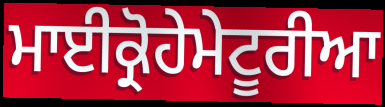
ਮਾਈਕ੍ਰੋਹੇਮੇਟੂਰੀਆ